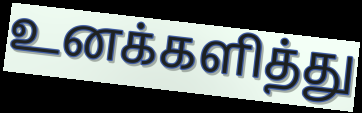
உனக்களித்து